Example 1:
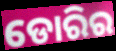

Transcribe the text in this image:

ଡୋରିର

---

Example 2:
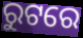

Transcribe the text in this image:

ରୁଟରେ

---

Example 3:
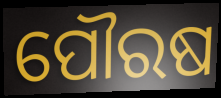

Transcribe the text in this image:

ପୌରଷ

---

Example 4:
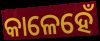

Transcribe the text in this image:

କାଳେହେଁ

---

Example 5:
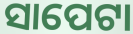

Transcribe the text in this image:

ସାପେଟା